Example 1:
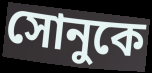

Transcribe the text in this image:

সোনুকে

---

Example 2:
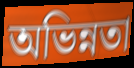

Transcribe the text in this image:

অভিন্নতা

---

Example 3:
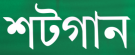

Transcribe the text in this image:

শটগান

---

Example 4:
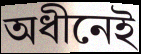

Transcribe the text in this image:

অধীনেই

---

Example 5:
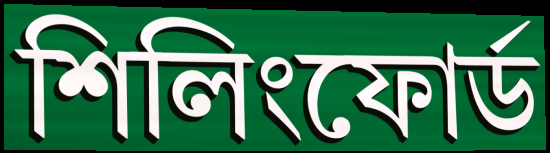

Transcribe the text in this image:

শিলিংফোর্ড